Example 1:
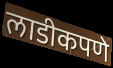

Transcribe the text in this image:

लाडीकपणे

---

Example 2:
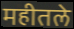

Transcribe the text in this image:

महीतले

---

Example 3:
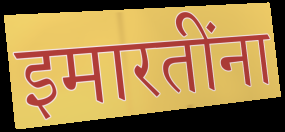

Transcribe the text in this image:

इमारतींना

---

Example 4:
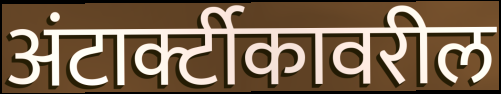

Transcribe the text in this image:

अंटार्क्टीकावरील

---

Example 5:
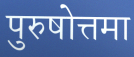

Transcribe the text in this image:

पुरुषोत्तमा